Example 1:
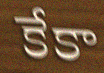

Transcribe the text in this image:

కేకా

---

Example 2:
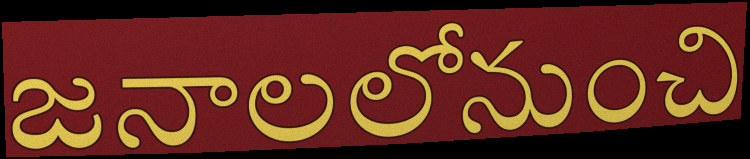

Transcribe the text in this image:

జనాలలోనుంచి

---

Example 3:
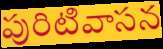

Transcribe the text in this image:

పురిటివాసన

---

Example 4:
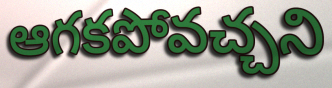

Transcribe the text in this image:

ఆగకపోవచ్చని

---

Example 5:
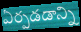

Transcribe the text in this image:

ఏర్పడడాన్ని